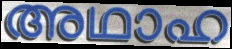
അഥാഹ